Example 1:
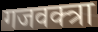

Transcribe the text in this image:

गजवक्त्रा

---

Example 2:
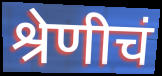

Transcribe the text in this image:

श्रेणीचं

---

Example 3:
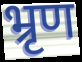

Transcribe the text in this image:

भ्रृण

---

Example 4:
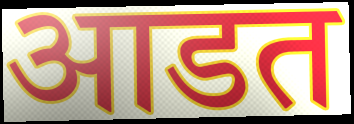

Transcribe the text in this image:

आडत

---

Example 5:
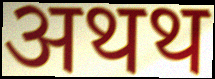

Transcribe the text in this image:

अथथ